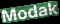
Modak